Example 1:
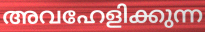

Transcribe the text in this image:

അവഹേളിക്കുന്ന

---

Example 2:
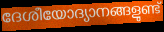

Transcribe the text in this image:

ദേശീയോദ്യാനങ്ങളുണ്ട്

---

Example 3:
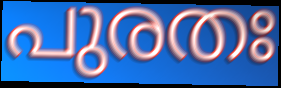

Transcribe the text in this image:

പുരതഃ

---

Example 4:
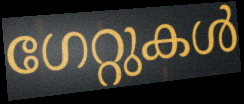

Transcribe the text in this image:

ഗേറ്റുകൾ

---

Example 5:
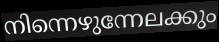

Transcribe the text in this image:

നിന്നെഴുന്നേലക്കും